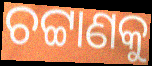
ଚଟ୍ଟାଣକୁ